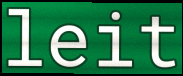
leit